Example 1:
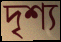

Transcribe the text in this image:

দৃশ্য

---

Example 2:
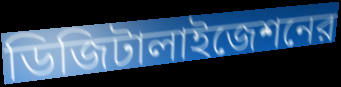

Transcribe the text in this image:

ডিজিটালাইজেশনের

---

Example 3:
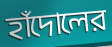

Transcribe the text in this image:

হাঁদোলের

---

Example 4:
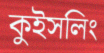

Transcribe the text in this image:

কুইসলিং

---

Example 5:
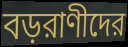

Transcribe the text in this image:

বড়রাণীদের